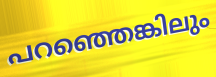
പറഞ്ഞെങ്കിലും